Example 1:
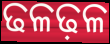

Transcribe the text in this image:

ଢଳଢ଼ଳ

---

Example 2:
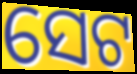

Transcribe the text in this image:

ସେଟ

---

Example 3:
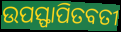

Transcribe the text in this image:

ଉପସ୍ଫାପିତବତୀ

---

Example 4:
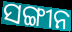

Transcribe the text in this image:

ସଙ୍ଗୀନ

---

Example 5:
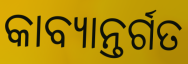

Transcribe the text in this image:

କାବ୍ଯାନ୍ତର୍ଗତ